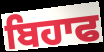
ਬਿਹਾਫ